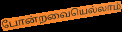
போன்றவையெல்லாம்